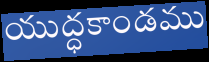
యుద్ధకాండము